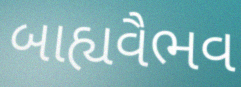
બાહ્યવૈભવ